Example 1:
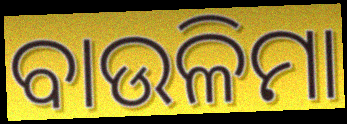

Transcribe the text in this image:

ବାଉଳିମା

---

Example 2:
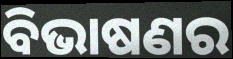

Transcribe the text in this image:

ବିଭାଷଣର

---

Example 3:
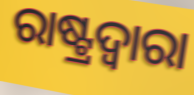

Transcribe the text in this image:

ରାଷ୍ଟ୍ରଦ୍ୱାରା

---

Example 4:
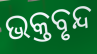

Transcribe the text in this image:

ଭକ୍ତବୃନ୍ଦ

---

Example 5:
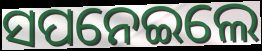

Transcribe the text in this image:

ସପନେଇଲେ